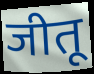
जीतू